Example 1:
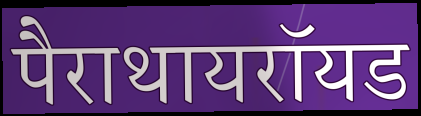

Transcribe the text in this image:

पैराथायरॉयड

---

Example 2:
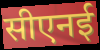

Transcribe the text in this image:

सीएनई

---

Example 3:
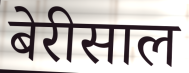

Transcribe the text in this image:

बेरीसाल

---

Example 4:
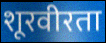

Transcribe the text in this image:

शूरवीरता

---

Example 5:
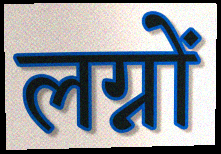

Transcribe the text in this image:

लग्नों